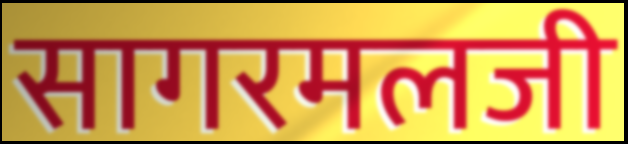
सागरमलजी